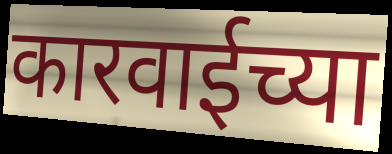
कारवाईच्या